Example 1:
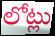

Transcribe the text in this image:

లోట్లు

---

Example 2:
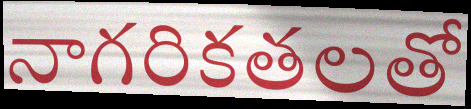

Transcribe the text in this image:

నాగరికతలతో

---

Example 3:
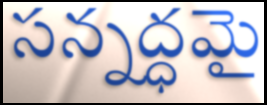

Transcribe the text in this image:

సన్నద్ధమై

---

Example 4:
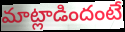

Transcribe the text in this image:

మాట్లాడిందంటే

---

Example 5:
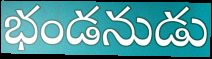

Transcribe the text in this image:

భండనుడు